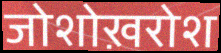
जोशोख़रोश